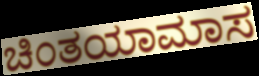
ಚಿಂತಯಾಮಾಸ